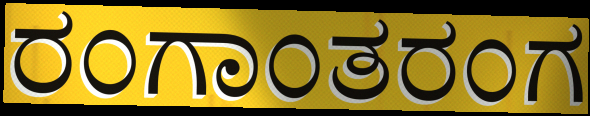
ರಂಗಾಂತರಂಗ